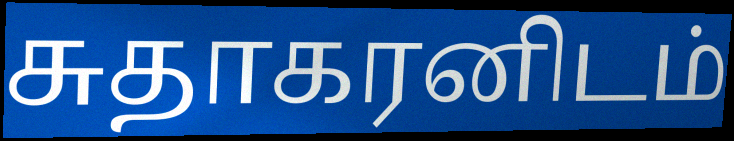
சுதாகரனிடம்